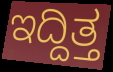
ಇದ್ದಿತ್ತ